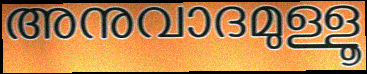
അനുവാദമുള്ളൂ